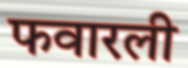
फवारली